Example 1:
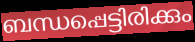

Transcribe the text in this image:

ബന്ധപ്പെട്ടിരിക്കും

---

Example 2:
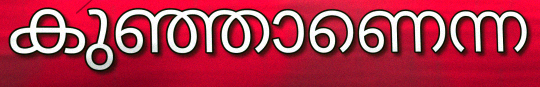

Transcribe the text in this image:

കുഞ്ഞാണെന്ന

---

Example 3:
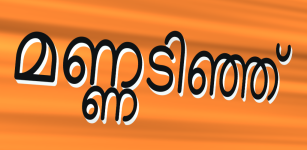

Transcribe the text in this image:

മണ്ണടിഞ്ഞ്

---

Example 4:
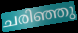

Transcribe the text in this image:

ചരിഞ്ഞു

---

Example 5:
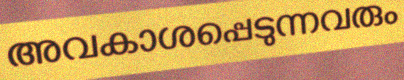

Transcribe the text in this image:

അവകാശപ്പെടുന്നവരും